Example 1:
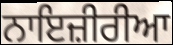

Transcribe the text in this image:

ਨਾਇਜ਼ੀਰੀਆ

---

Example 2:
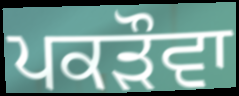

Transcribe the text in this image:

ਪਕੜੌਵਾ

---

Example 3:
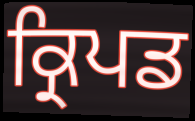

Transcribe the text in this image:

ਕ੍ਰਿਪਡ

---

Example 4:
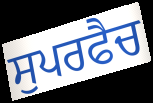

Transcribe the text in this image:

ਸੁਪਰਫੈਚ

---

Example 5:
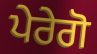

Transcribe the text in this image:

ਪੇਰੇਗੋ